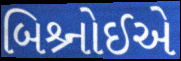
બિશ્ર્નોઈએ